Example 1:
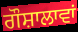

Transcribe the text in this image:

ਗੌਸ਼ਾਲਾਵਾਂ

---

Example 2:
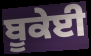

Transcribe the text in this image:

ਬੂਕੇਈ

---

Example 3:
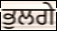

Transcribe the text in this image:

ਭੁਲਗੇ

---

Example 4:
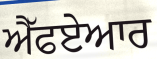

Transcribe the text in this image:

ਐੱਫਏਆਰ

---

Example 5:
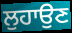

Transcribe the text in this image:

ਲੁਹਾਉਣ